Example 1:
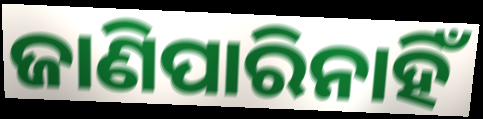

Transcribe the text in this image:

ଜାଣିପାରିନାହିଁ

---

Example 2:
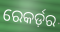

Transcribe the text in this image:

ରେକର୍ଡ଼ର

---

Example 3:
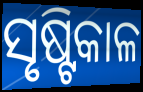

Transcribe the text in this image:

ସୃଷ୍ଟିକାଳ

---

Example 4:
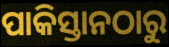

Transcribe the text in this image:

ପାକିସ୍ତାନଠାରୁ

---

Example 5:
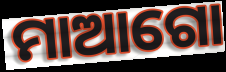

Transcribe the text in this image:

ମାଆଗୋ